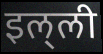
इल्ली